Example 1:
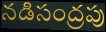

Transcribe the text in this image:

నడిసంద్రపు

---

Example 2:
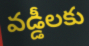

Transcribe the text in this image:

వడ్డీలకు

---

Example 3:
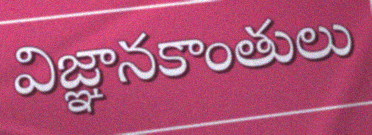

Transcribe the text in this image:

విజ్ఞానకాంతులు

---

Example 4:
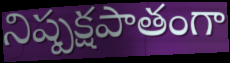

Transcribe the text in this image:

నిష్పక్షపాతంగా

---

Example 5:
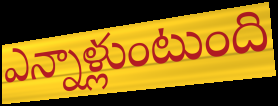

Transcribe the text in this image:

ఎన్నాళ్లుంటుంది